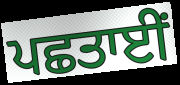
ਪਛਤਾਈਂ